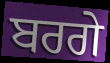
ਬਰਗੇ